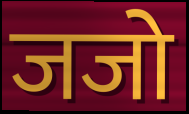
जजो